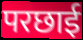
परछाई